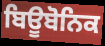
ਬਿਊਬੋਨਿਕ